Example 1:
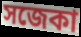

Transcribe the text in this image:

সজেকা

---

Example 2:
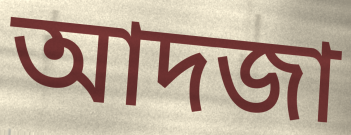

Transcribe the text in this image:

আদজা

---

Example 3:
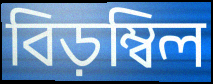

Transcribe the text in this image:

বিড়ম্বিল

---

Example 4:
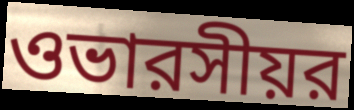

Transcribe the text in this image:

ওভারসীয়র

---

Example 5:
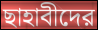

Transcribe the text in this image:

ছাহাবীদের